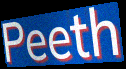
Peeth